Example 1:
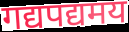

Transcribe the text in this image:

गद्यपद्यमय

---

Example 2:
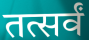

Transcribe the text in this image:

तत्सर्वं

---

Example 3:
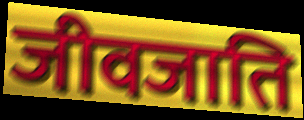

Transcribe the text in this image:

जीवजाति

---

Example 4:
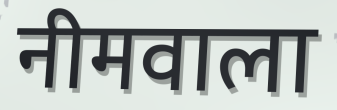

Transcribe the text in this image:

नीमवाला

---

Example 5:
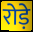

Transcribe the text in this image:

रोड़े